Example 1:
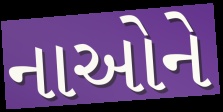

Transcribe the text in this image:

નાઓને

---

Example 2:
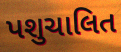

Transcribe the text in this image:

પશુચાલિત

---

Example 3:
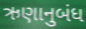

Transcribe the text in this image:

ઋણાનુબંધ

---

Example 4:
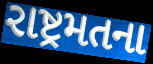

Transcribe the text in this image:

રાષ્ટ્રમતના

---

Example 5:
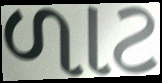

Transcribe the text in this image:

ળાટ